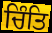
ਚਿੰਤਿ